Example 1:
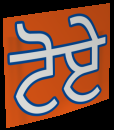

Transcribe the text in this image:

ਟੋਏ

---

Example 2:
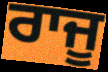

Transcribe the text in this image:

ਰਾਜੂ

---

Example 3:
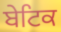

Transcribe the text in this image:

ਬੇਟਿਕ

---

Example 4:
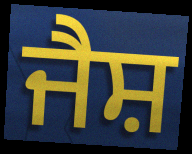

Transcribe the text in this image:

ਜੈਸ਼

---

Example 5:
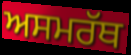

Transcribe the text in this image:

ਅਸਮਰੱਥ